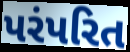
પરંપરિત